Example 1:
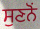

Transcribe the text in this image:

ਸੁਣਨੋਂ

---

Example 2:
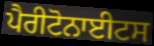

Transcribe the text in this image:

ਪੈਰੀਟੋਨਾਈਟਸ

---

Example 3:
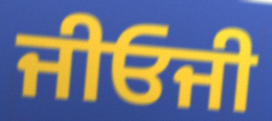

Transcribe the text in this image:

ਜੀਓਜੀ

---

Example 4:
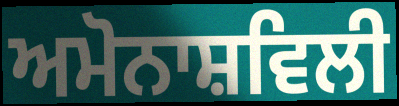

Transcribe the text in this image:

ਅਮੋਨਾਸ਼ਵਿਲੀ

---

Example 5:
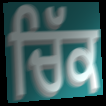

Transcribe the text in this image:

ਚਿੱਕ